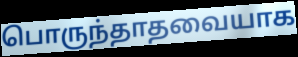
பொருந்தாதவையாக